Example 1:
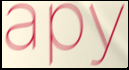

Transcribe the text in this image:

apy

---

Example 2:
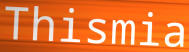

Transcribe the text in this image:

Thismia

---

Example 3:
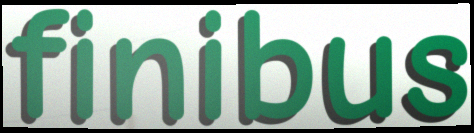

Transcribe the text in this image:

finibus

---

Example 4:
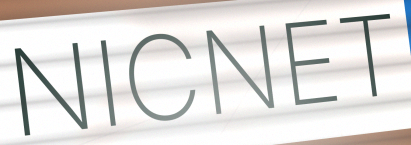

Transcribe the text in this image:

NICNET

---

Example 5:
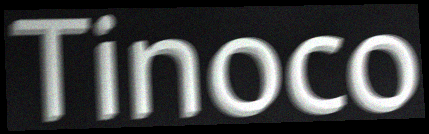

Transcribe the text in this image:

Tinoco